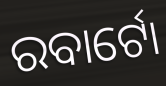
ରବାର୍ଟୋ